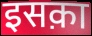
इसक़ा